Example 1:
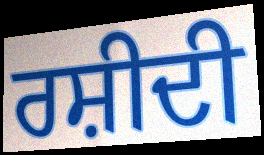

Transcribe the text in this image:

ਰਸ਼ੀਦੀ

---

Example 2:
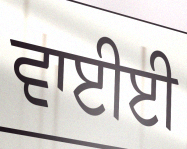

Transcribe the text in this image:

ਵਾਈਈ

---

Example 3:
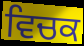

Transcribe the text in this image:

ਵਿਚਕ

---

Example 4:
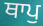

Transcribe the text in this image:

ਥਾਪੁ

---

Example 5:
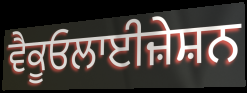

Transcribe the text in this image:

ਵੈਕੂਓਲਾਈਜ਼ੇਸ਼ਨ